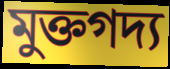
মুক্তগদ্য